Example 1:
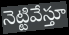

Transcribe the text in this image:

నెట్టివేస్తూ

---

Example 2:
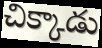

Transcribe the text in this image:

చిక్కాడు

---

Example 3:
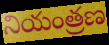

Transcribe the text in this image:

నియంత్రణ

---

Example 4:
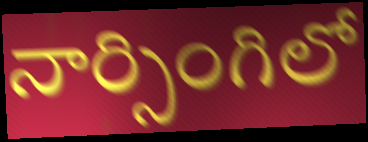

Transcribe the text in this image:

నార్సింగిలో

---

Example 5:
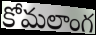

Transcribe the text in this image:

కోమలాంగ